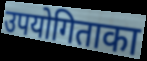
उपयोगिताका